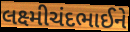
લક્ષ્મીચંદભાઈને